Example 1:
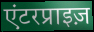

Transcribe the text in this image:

एंटरप्राइज़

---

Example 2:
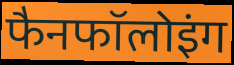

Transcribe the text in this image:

फैनफॉलोइंग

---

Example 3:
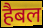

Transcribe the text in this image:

हैबल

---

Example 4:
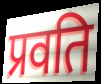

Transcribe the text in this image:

प्रवति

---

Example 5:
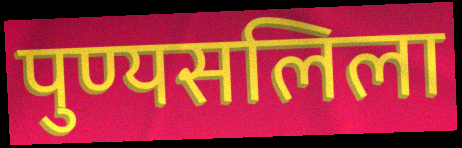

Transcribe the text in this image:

पुण्यसलिला